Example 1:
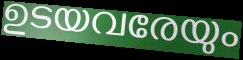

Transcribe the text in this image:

ഉടയവരേയും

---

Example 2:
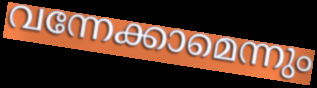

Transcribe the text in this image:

വന്നേക്കാമെന്നും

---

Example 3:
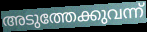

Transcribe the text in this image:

അടുത്തേക്കുവന്ന്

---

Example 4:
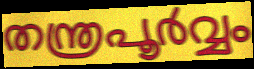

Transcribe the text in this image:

തന്ത്രപൂർവ്വം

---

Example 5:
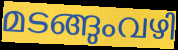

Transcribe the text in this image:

മടങ്ങുംവഴി